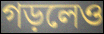
গড়লেও